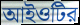
আইওটির